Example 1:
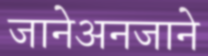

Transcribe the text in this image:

जानेअनजाने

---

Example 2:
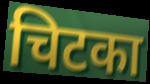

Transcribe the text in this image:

चिटका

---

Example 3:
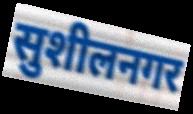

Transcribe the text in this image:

सुशीलनगर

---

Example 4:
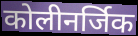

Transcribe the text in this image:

कोलीनर्जिक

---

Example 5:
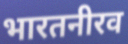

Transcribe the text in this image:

भारतनीरव